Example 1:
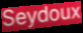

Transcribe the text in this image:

Seydoux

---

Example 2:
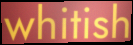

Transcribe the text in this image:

whitish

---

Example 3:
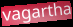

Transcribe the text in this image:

vagartha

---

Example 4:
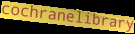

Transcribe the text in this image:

cochranelibrary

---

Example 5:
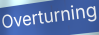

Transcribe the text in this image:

Overturning